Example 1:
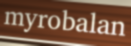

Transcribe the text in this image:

myrobalan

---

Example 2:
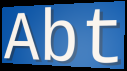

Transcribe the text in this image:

Abt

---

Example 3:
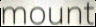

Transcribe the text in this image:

mount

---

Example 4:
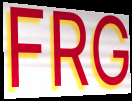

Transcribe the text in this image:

FRG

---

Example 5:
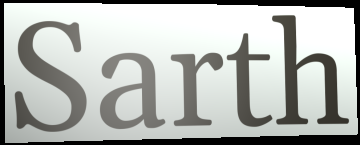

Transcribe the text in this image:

Sarth